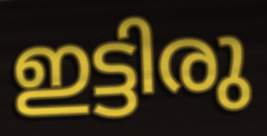
ഇട്ടിരു